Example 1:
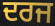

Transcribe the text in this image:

ਦਰਜ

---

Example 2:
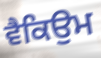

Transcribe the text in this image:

ਵੈਕਿਉਮ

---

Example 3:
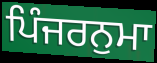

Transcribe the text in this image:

ਪਿੰਜਰਨੁਮਾ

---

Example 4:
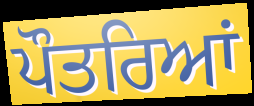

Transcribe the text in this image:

ਪੌਤਰਿਆਂ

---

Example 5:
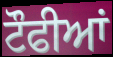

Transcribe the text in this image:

ਟੌਫੀਆਂ